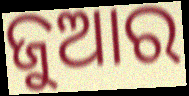
ଜୁଆର